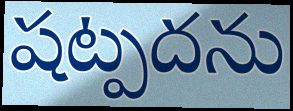
షట్పదను